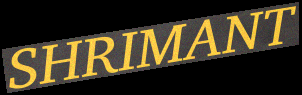
SHRIMANT